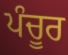
ਪੰਚੂਰ